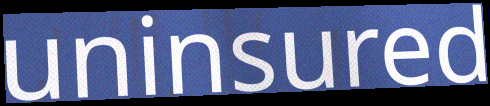
uninsured